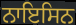
ਨਾਇਸਿਨ